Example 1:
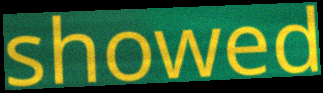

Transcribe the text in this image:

showed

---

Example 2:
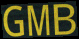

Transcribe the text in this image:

GMB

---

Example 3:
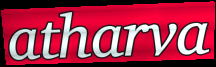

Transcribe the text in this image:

atharva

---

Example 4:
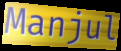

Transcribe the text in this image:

Manjul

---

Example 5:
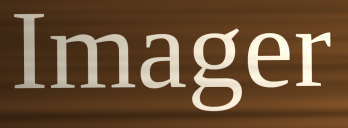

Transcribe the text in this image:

Imager